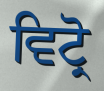
ਵਿਟ੍ਰੋ